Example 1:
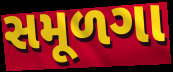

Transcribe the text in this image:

સમૂળગા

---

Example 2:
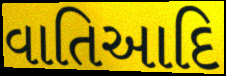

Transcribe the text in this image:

વાતિઆદિ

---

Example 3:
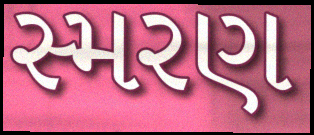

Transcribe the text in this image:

સ્‍મરણ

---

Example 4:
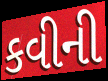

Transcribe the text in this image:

કવીની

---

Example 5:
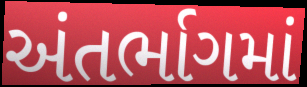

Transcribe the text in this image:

અંતર્ભાગમાં